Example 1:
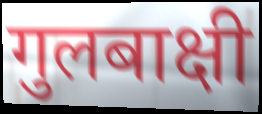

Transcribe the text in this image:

गुलबाक्षी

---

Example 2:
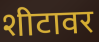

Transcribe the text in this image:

शीटावर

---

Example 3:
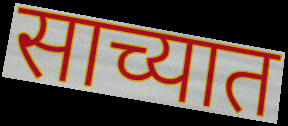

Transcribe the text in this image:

साच्यात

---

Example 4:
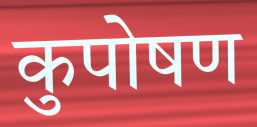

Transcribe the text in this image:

कुपोषण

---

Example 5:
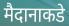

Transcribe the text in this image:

मैदानाकडे